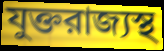
যুক্তরাজ্যস্থ